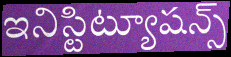
ఇనిస్టిట్యూషన్స్